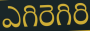
ఎగిరెగిరి